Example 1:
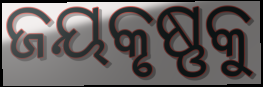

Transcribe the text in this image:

ଜୟକୃଷ୍ଣକୁ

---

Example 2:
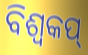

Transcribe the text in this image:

ବିଶ୍ୱକପ୍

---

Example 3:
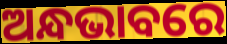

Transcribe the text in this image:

ଅନ୍ଧଭାବରେ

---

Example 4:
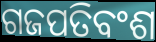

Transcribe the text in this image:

ଗଜପତିବଂଶ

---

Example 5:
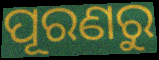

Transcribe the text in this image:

ପୂରଣରୁ